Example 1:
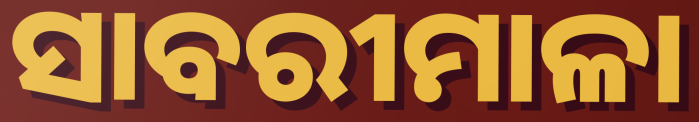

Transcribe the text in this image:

ସାବରୀମାଳା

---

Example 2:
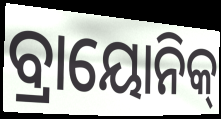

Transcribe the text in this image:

ବ୍ରାୟୋନିକ୍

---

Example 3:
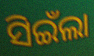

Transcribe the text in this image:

ସିଇଁଲା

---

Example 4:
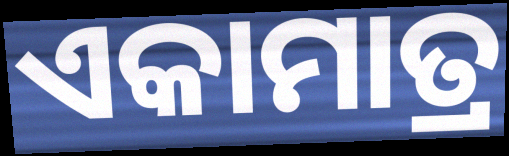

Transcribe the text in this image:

ଏକାମାତ୍ର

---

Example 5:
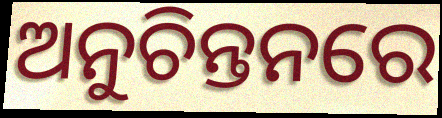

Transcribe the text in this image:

ଅନୁଚିନ୍ତନରେ